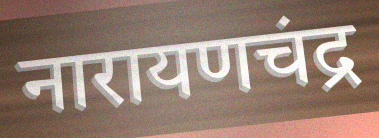
नारायणचंद्र